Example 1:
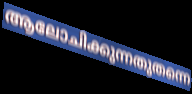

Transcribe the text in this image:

ആലോചിക്കുന്നതുതന്നെ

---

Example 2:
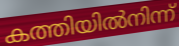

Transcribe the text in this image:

കത്തിയിൽനിന്ന്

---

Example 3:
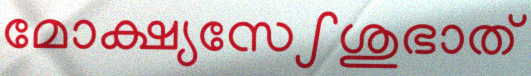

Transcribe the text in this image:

മോക്ഷ്യസേഽശുഭാത്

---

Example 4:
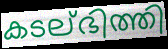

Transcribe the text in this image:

കടല്ഭിത്തി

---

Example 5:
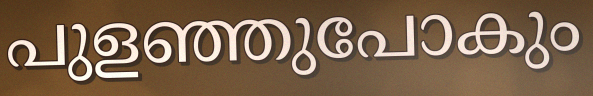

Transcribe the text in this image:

പുളഞ്ഞുപോകും